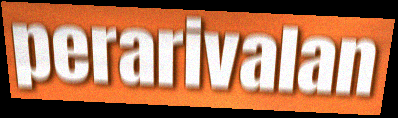
perarivalan